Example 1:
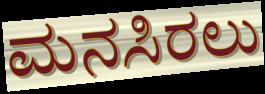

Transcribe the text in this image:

ಮನಸಿರಲು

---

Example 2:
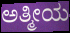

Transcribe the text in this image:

ಅತ್ಮೀಯ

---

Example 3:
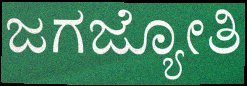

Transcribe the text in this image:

ಜಗಜ್ಯೋತಿ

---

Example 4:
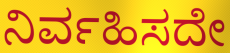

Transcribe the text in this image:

ನಿರ್ವಹಿಸದೇ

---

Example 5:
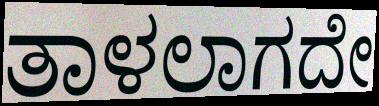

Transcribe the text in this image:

ತಾಳಲಾಗದೇ